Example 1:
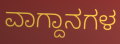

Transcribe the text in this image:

ವಾಗ್ದಾನಗಳ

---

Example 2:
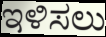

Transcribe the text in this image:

ಇಳಿಸಲು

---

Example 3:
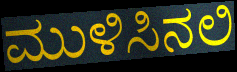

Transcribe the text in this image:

ಮುಳಿಸಿನಲಿ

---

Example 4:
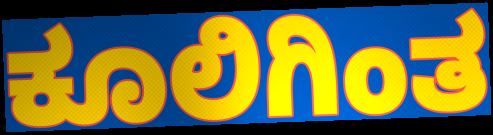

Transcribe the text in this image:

ಕೂಲಿಗಿಂತ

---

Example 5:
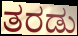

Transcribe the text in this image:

ತರಡು